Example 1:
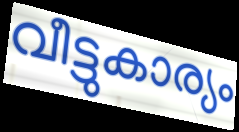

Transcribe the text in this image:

വീട്ടുകാര്യം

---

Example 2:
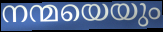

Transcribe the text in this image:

നന്മയെയും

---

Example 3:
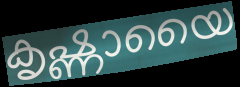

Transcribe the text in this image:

കൃഷ്ണായൈ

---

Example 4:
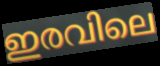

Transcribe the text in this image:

ഇരവിലെ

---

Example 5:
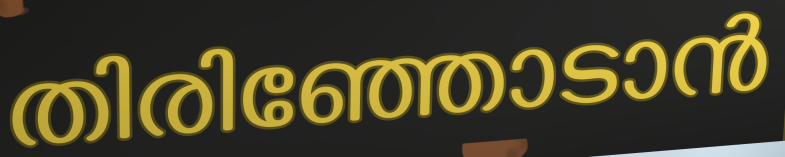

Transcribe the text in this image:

തിരിഞ്ഞോടാൻ